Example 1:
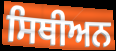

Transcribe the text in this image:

ਸਿਥੀਅਨ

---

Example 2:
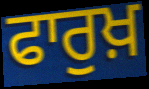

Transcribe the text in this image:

ਫਾਰੁਖ਼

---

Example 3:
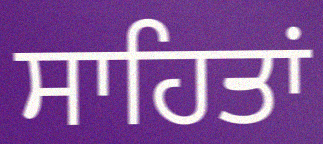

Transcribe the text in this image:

ਸਾਹਿਤਾਂ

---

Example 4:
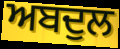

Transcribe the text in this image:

ਅਬਦੁਲ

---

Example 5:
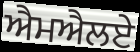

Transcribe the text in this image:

ਐਮਐਲਏ